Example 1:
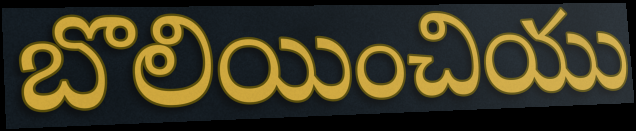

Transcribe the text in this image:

బొలియించియు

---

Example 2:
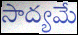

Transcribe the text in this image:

సాద్యమే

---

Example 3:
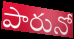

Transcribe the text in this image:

పారునో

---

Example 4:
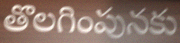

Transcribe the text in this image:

తొలగింపునకు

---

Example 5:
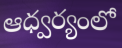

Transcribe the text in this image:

ఆధ్వర్యంలో